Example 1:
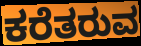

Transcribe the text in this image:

ಕರೆತರುವ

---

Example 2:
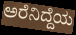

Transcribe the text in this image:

ಅರೆನಿದ್ದೆಯ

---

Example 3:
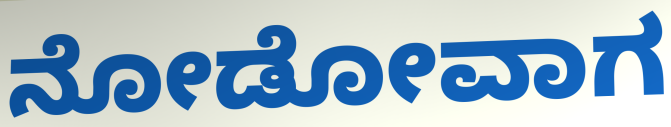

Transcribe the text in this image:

ನೋಡೋವಾಗ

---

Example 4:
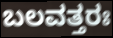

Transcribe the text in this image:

ಬಲವತ್ತರಃ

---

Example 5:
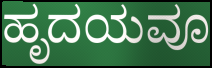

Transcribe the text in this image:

ಹೃದಯವೂ